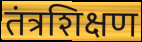
तंत्रशिक्षण